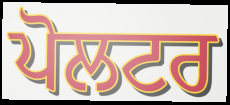
ਪੋਲਟਰ